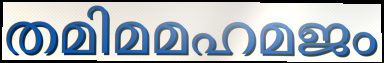
തമിമമഹമജം